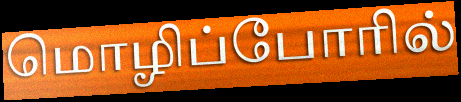
மொழிப்போரில்